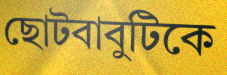
ছোটবাবুটিকে